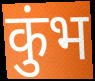
कुंभ